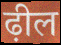
ढ़ील